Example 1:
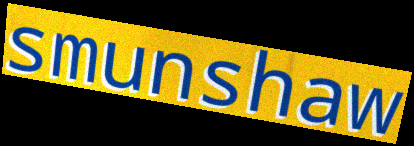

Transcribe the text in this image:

smunshaw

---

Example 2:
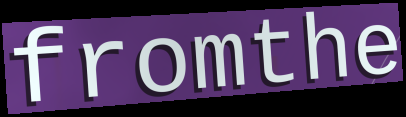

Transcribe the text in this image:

fromthe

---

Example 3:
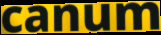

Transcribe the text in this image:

canum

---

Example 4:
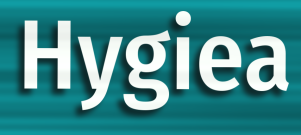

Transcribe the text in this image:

Hygiea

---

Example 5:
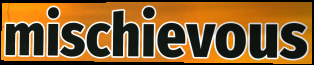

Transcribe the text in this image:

mischievous